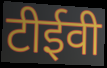
टीईवी